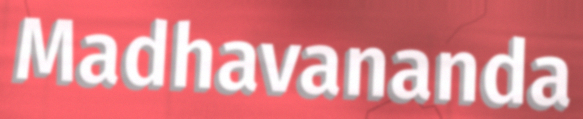
Madhavananda